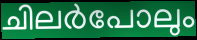
ചിലർപോലും